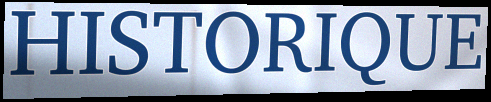
HISTORIQUE